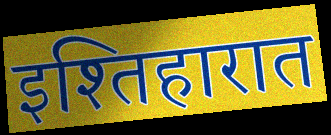
इश्तिहारात